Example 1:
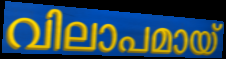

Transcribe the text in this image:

വിലാപമായ്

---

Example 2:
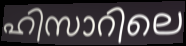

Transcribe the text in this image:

ഹിസാറിലെ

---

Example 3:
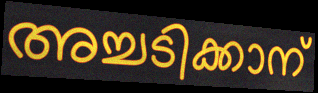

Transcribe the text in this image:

അച്ചടിക്കാന്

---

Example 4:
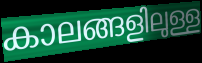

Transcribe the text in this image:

കാലങ്ങളിലുള്ള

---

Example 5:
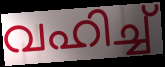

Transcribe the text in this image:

വഹിച്ച്